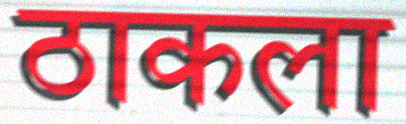
ठाकला